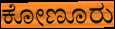
ಕೋಣೂರು